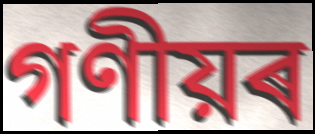
গণীয়ৰ